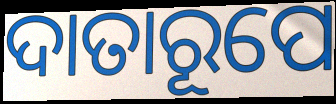
ଦାତାରୂପେ